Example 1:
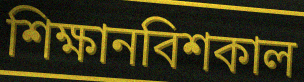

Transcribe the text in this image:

শিক্ষানবিশকাল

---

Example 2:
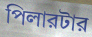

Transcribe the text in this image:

পিলারটার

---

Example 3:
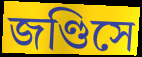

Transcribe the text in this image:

জণ্ডিসে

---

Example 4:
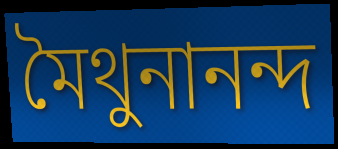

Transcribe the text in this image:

মৈথুনানন্দ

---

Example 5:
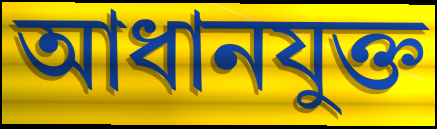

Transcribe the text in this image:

আধানযুক্ত